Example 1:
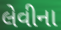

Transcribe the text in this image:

લેવીના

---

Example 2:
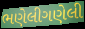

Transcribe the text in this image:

ભણેલીગણેલી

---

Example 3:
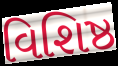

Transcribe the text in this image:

વિશિષ્ઠ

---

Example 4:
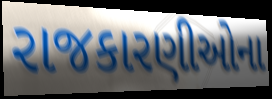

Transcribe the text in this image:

રાજકારણીઓના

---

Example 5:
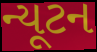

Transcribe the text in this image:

ન્યૂટન